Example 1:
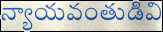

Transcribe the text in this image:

న్యాయవంతుడివి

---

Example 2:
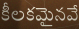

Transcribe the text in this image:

కీలకమైనవే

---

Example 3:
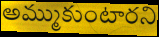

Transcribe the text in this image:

అమ్ముకుంటారని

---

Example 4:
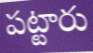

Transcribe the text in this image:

పట్టారు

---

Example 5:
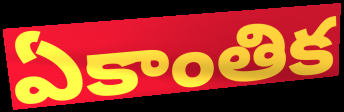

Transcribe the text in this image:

ఏకాంతిక